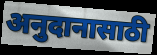
अनुदानासाठी